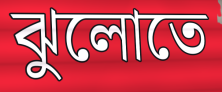
ঝুলোতে